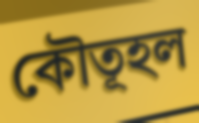
কৌতূহল